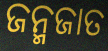
ଜନ୍ମଜାତ